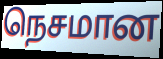
நெசமான